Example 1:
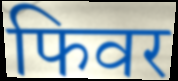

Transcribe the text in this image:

फिवर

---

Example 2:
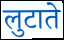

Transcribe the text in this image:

लुटाते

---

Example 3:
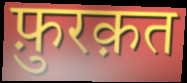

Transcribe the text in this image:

फ़ुरक़त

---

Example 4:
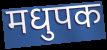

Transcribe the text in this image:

मधुपक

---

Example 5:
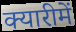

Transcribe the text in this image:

क्यारीमें